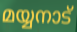
മയ്യനാട്